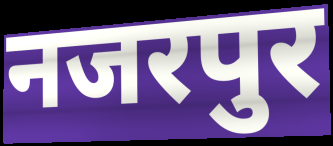
नजरपुर